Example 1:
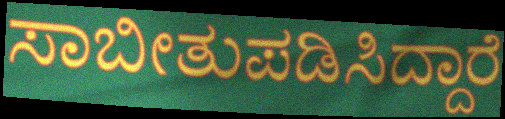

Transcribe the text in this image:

ಸಾಬೀತುಪಡಿಸಿದ್ದಾರೆ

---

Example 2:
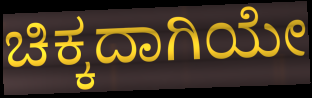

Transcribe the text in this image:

ಚಿಕ್ಕದಾಗಿಯೇ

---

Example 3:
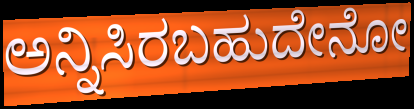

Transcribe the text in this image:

ಅನ್ನಿಸಿರಬಹುದೇನೋ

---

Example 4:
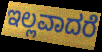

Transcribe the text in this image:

ಇಲ್ಲವಾದರೆ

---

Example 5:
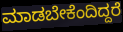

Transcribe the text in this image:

ಮಾಡಬೇಕೆಂದಿದ್ದರೆ